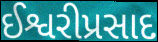
ઈશ્વરીપ્રસાદ